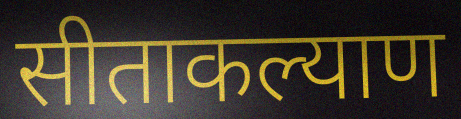
सीताकल्याण